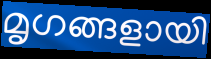
മൃഗങ്ങളായി